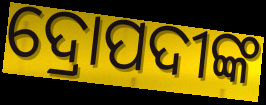
ଦ୍ରୋପଦୀଙ୍କ